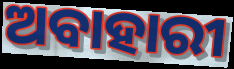
ଅବାହାରୀ